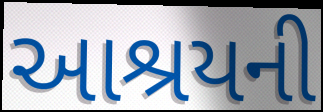
આશ્રયની